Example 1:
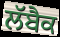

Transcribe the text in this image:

ਲੱਬੈਕ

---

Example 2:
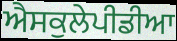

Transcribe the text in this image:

ਐਸਕੁਲੇਪੀਡੀਆ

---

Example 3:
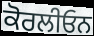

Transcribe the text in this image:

ਕੋਰਲੀਓਨ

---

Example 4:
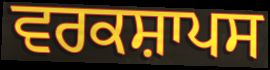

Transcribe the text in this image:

ਵਰਕਸ਼ਾਪਸ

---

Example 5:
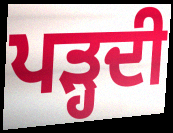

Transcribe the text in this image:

ਪਡ਼੍ਹਦੀ